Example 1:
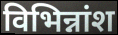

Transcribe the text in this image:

विभिन्नांश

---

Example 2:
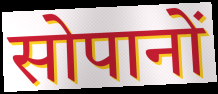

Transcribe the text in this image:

सोपानों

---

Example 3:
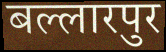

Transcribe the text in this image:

बल्लारपुर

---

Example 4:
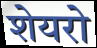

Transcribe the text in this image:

शेयरो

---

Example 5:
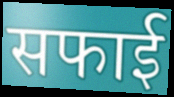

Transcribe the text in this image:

सफाई